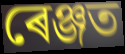
ৰেঞ্জত